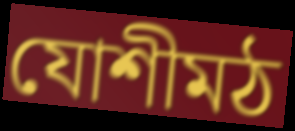
যোশীমঠ